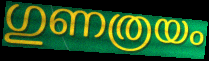
ഗുണത്രയം